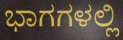
ಭಾಗಗಳಲ್ಲಿ